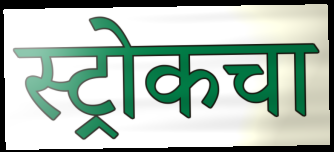
स्ट्रोकचा